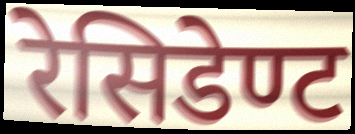
रेसिडेण्ट